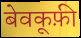
बेवकूफ़ी